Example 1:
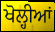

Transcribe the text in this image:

ਖੋਲ੍ਹੀਆਂ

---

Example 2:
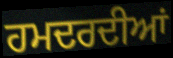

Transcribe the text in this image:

ਹਮਦਰਦੀਆਂ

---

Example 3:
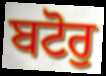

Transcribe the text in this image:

ਬਟੋਰੁ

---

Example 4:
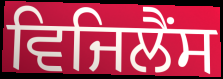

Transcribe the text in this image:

ਵਿਜਿਲੈਂਸ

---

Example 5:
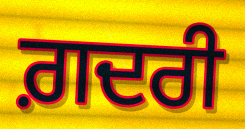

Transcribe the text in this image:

ਗ਼ਦਰੀ